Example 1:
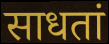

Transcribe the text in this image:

साधतां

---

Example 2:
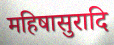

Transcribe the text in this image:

महिषासुरादि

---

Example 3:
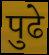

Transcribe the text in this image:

पुढे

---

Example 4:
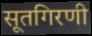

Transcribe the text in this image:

सूतगिरणी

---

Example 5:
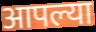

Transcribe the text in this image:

आपल्या